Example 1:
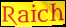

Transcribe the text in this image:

Raich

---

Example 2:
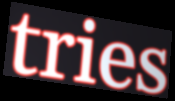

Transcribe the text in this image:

tries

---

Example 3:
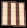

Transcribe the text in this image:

lll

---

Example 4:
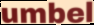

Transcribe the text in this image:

umbel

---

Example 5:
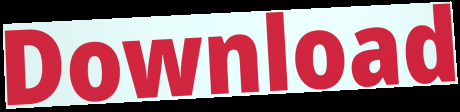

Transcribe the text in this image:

Download